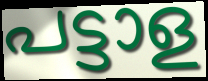
പട്ടാള